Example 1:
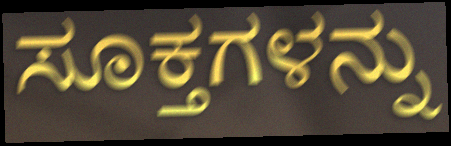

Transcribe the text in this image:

ಸೂಕ್ತಗಳನ್ನು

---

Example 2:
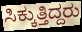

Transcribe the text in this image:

ಸಿಕ್ಕುತ್ತಿದ್ದರು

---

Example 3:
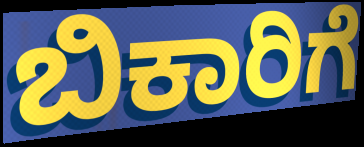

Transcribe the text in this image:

ಬಿಕಾರಿಗೆ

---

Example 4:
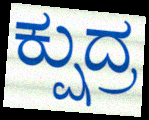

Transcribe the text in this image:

ಕ್ಷುದ್ರ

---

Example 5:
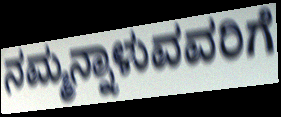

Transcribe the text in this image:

ನಮ್ಮನ್ನಾಳುವವರಿಗೆ